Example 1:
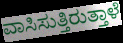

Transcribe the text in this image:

ವಾಸಿಸುತ್ತಿರುತ್ತಾಳೆ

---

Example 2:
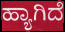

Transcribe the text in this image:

ಹ್ಯಾಗಿದೆ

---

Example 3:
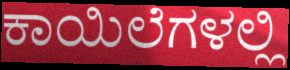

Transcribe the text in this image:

ಕಾಯಿಲೆಗಳಲ್ಲಿ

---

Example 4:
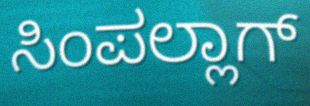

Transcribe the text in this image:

ಸಿಂಪಲ್ಲಾಗ್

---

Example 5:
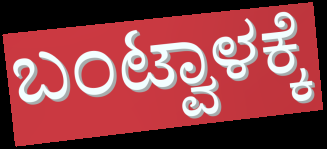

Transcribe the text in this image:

ಬಂಟ್ವಾಳಕ್ಕೆ